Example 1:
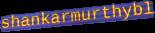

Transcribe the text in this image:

shankarmurthybl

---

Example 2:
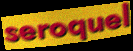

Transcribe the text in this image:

seroquel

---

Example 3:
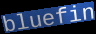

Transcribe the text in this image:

bluefin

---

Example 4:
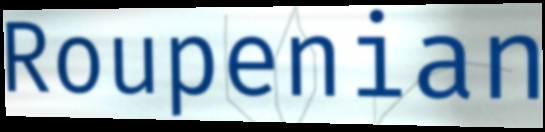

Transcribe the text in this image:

Roupenian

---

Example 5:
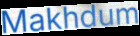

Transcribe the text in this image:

Makhdum